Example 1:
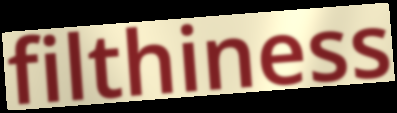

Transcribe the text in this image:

filthiness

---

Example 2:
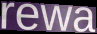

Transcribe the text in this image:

rewa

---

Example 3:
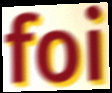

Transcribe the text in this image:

foi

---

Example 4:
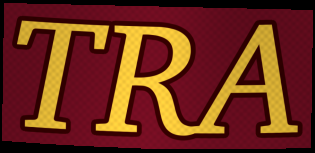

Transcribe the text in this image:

TRA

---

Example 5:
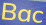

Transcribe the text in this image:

Bac